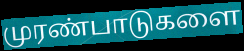
முரண்பாடுகளை